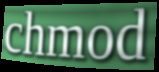
chmod